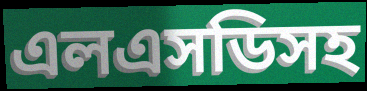
এলএসডিসহ